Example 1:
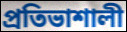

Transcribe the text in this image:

প্ৰতিভাশালী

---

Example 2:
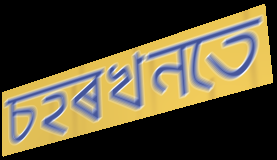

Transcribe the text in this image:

চহৰখনতে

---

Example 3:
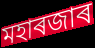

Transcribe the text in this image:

মহাৰজাৰ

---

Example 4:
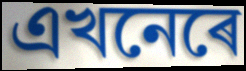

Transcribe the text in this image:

এখনেৰে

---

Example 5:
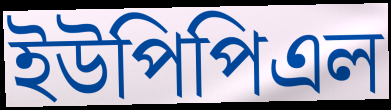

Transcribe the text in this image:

ইউপিপিএল